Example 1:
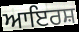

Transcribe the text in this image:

ਆਇਰਸ਼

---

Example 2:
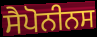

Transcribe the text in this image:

ਸੈਪੋਨੀਨਸ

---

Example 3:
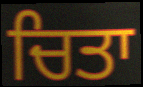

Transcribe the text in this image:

ਚਿਤਾ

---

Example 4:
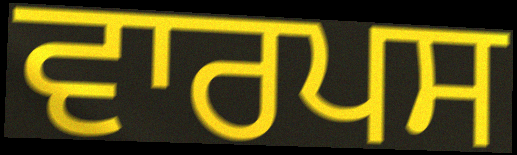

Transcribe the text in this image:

ਵਾਰਪਸ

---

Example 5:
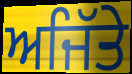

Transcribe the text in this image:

ਅਜਿੱਤੇ